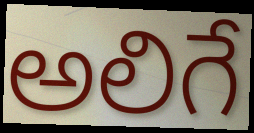
అలిగే